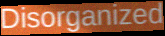
Disorganized